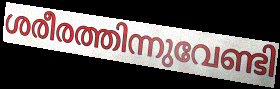
ശരീരത്തിന്നുവേണ്ടി